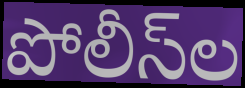
పోలీస్‌ల